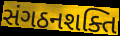
સંગઠનશક્તિ